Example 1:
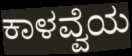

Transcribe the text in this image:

ಕಾಳವ್ವೆಯ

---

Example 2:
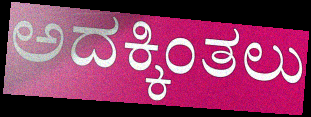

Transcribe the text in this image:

ಅದಕ್ಕಿಂತಲು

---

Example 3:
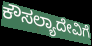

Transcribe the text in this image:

ಕೌಸಲ್ಯಾದೇವಿಗೆ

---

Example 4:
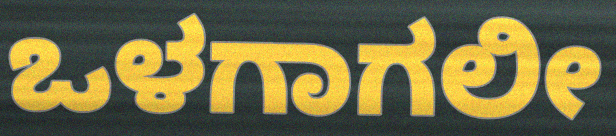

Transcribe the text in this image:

ಒಳಗಾಗಲೀ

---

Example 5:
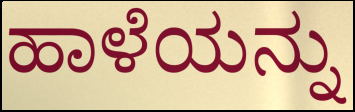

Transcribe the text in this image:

ಹಾಳೆಯನ್ನು